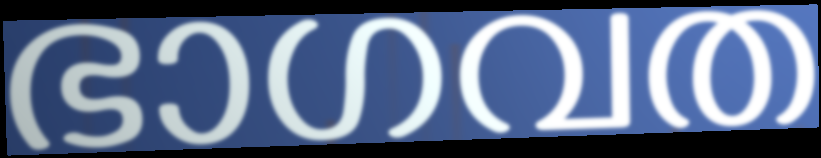
ഭാഗവത